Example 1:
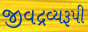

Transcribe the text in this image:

જીવદ્રવ્યરૂપી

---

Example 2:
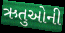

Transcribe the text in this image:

ઋતુઓની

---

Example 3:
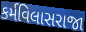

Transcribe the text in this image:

કર્મવિલાસરાજા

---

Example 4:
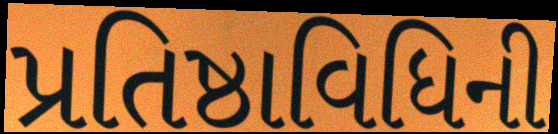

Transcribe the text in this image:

પ્રતિષ્ઠાવિધિની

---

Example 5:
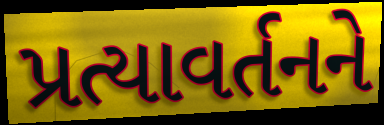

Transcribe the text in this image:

પ્રત્યાવર્તનને